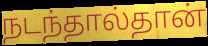
நடந்தால்தான்